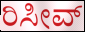
ರಿಸೀವ್